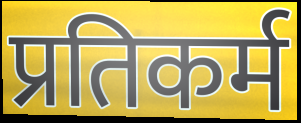
प्रतिकर्म